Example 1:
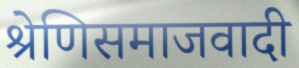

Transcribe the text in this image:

श्रेणिसमाजवादी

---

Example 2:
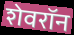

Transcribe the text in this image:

शेवरॉन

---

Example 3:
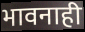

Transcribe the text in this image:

भावनाही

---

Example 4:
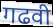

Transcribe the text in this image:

गढवी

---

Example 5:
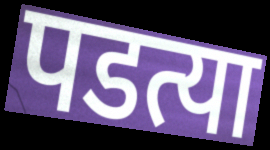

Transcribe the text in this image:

पडत्या